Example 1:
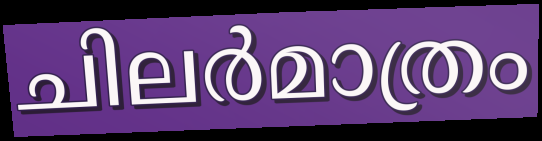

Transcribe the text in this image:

ചിലർമാത്രം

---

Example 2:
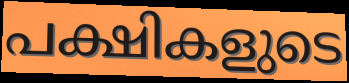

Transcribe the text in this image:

പക്ഷികളുടെ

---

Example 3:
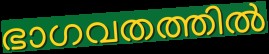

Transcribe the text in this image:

ഭാഗവതത്തിൽ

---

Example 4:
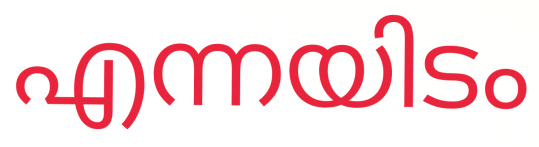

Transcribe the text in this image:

എന്നയിടം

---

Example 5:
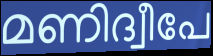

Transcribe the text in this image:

മണിദ്വീപേ